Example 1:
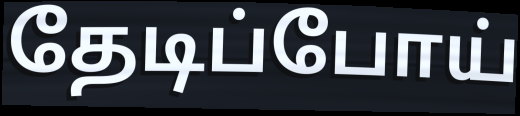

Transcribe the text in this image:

தேடிப்போய்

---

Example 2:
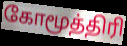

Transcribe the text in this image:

கோமூத்திரி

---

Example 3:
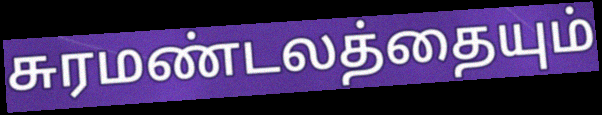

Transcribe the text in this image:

சுரமண்டலத்தையும்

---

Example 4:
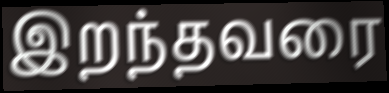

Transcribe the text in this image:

இறந்தவரை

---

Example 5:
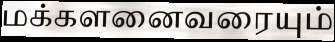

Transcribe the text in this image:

மக்களனைவரையும்